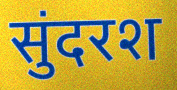
सुंदरश